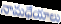
నామధేయాలు